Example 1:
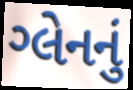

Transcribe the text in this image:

ગ્લેનનું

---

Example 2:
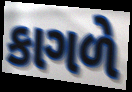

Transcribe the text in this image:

કાગળે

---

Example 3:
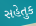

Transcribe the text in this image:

સહેતુક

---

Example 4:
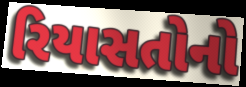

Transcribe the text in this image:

રિયાસતોનો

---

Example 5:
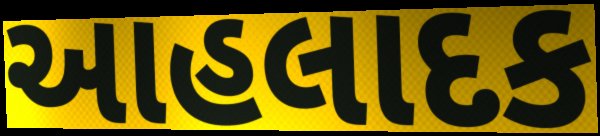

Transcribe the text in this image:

આહલાદક